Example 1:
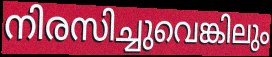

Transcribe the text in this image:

നിരസിച്ചുവെങ്കിലും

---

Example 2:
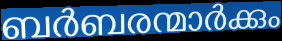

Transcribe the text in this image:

ബർബരന്മാർക്കും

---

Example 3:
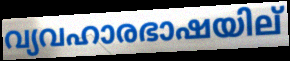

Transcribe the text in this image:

വ്യവഹാരഭാഷയില്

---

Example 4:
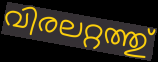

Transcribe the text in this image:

വിരലറ്റത്തു്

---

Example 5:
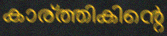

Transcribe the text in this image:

കാര്ത്തികിന്റെ